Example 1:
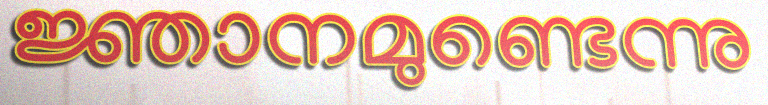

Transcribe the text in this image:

ജ്ഞാനമുണ്ടെന്നു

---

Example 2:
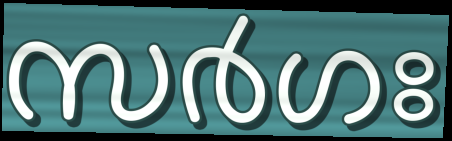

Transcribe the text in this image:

സർഗഃ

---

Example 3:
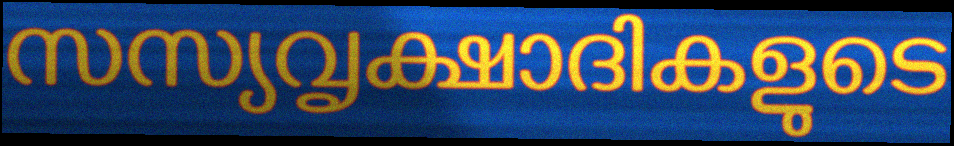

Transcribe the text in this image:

സസ്യവൃക്ഷാദികളുടെ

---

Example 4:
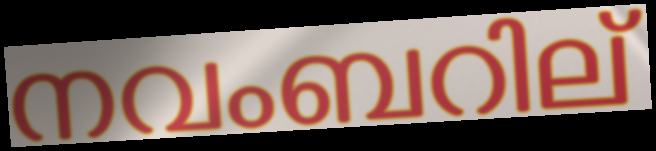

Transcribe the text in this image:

നവംബറില്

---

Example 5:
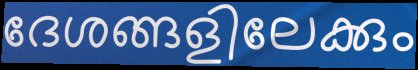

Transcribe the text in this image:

ദേശങ്ങളിലേക്കും